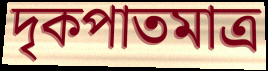
দৃকপাতমাত্র